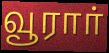
வூரார்